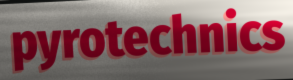
pyrotechnics